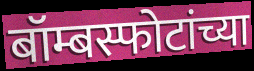
बॉम्बस्फोटांच्या